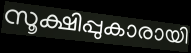
സൂക്ഷിപ്പുകാരായി